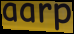
aarp